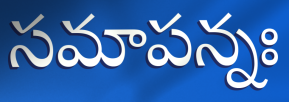
సమాపన్నః